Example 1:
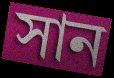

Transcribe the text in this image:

সান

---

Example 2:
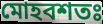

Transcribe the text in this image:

মোহবশতঃ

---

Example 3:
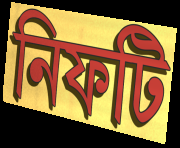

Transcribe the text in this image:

নিফটি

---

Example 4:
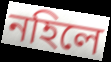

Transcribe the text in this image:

নহিলে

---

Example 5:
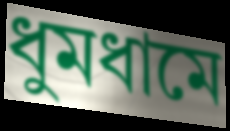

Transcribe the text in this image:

ধুমধামে